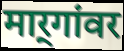
मार्गांवर